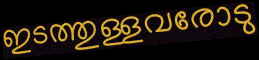
ഇടത്തുള്ളവരോടു